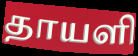
தாயளி